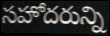
సహోదరున్ని